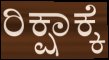
ರಿಕ್ಷಾಕ್ಕೆ